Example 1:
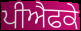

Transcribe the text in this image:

ਪੀਐਫਕੇ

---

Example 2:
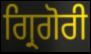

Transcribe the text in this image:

ਗ੍ਰਿਗੋਰੀ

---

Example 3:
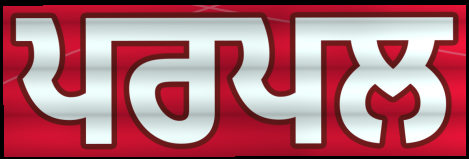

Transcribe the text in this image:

ਪਰਪਲ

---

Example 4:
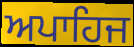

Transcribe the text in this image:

ਅਪਾਹਿਜ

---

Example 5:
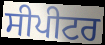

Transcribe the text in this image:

ਸੀਪੀਟਰ